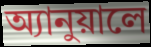
অ্যানুয়ালে